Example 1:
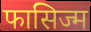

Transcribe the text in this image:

फासिज्म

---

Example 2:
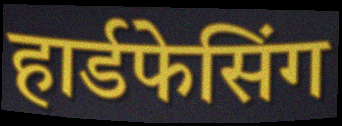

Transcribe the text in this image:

हार्डफेसिंग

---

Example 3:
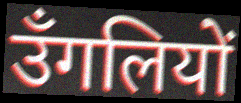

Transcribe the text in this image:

उँगलियों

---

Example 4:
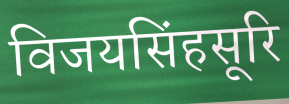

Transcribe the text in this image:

विजयसिंहसूरि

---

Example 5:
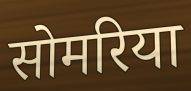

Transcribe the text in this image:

सोमरिया